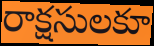
రాక్షసులకూ